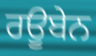
ਰਊਬੇਨ